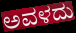
ಅವಳದು